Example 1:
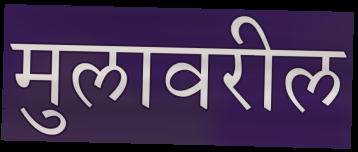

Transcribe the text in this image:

मुलावरील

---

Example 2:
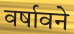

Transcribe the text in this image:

वर्षावने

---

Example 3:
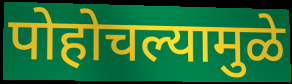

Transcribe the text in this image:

पोहोचल्यामुळे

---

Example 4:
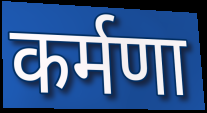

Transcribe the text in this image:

कर्मणा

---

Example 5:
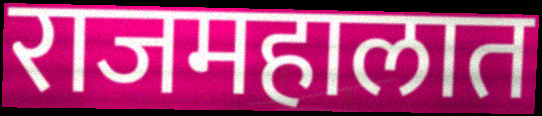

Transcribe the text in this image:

राजमहालात